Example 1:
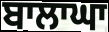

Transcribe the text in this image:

ਬਾਲਾਘਾ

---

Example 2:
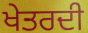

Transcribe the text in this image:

ਖੇਤਰਦੀ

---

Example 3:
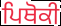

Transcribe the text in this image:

ਪਿਥੋਕੀ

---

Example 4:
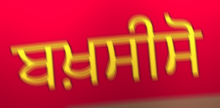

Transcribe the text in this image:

ਬਖ਼ਸੀਸੋ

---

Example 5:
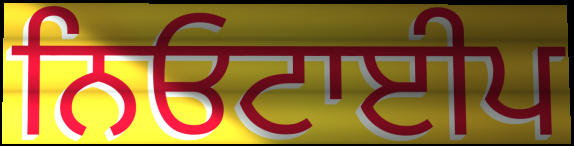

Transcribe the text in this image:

ਨਿਓਟਾਈਪ